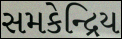
સમકેન્દ્રિય